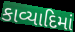
કાવ્યાદિમાં